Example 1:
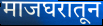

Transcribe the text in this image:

माजघरातून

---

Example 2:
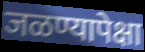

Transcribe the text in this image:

जळण्यापेक्षा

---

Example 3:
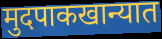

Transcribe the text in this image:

मुदपाकखान्यात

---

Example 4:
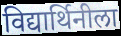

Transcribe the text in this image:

विद्यार्थिनीला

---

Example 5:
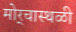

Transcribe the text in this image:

मोर्चास्थळी